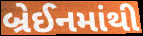
બ્રેઈનમાંથી